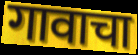
गावाचा